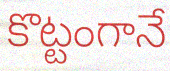
కొట్టంగానే